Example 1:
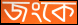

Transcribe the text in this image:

জংকে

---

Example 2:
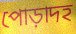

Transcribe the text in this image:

পোড়াদহ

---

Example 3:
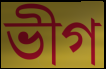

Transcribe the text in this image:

ভীগ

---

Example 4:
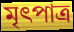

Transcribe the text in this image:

মৃৎপাত্র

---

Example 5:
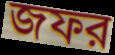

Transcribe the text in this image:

জফর